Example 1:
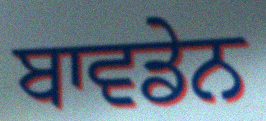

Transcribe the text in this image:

ਬਾਵਡੇਨ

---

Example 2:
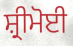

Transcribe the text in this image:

ਸ਼੍ਰੀਮੋਈ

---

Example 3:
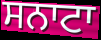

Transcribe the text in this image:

ਸਨਾਟਾ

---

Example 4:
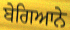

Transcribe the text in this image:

ਬੇਗਿਆਨੇ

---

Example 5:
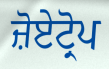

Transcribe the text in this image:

ਜ਼ੋਏਟ੍ਰੋਪ